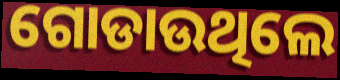
ଗୋଡାଉଥିଲେ